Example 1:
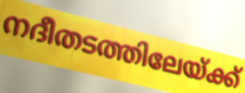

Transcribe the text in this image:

നദീതടത്തിലേയ്ക്ക്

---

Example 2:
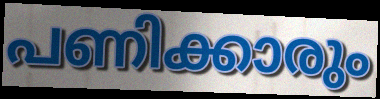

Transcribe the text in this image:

പണിക്കാരും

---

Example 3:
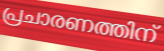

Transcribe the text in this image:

പ്രചാരണത്തിന്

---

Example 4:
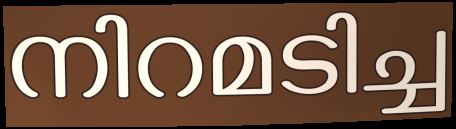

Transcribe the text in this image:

നിറമടിച്ച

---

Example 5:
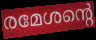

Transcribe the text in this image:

രമേശന്റെ